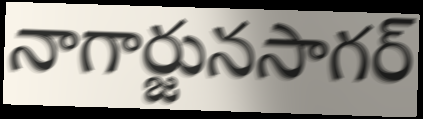
నాగార్జునసాగర్